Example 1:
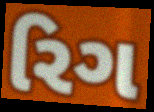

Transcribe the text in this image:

રિગ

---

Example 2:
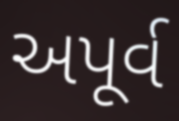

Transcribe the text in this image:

અપૂર્વ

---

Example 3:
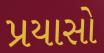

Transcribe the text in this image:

પ્રયાસો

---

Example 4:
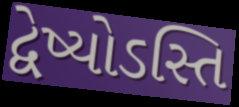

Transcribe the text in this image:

દ્વેષ્યોઽસ્તિ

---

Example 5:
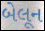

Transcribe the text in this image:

બેલૂન